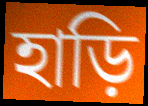
হাড়ি